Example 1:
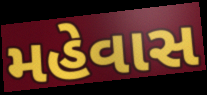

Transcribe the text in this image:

મહેવાસ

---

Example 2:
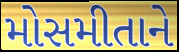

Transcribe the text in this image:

મોસમીતાને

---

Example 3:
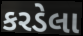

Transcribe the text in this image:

કરડેલા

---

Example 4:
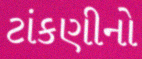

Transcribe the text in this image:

ટાંકણીનો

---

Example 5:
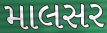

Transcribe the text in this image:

માલસર